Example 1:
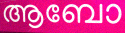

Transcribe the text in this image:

ആബോ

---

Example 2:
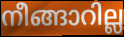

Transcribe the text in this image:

നീങ്ങാറില്ല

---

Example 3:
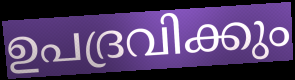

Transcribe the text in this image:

ഉപദ്രവിക്കും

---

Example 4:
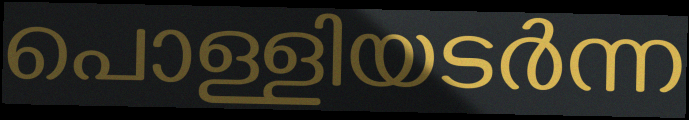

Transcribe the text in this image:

പൊള്ളിയടർന്ന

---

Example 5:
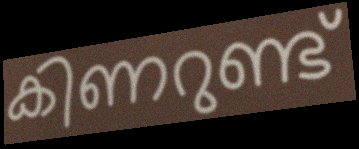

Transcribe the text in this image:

കിണറുണ്ട്